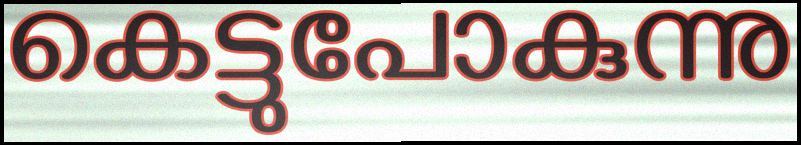
കെട്ടുപോകുന്നു